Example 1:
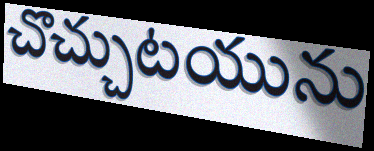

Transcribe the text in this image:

చొచ్చుటయును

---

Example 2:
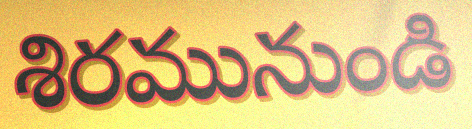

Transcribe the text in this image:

శిరమునుండి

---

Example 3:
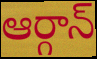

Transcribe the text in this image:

ఆర్గాన్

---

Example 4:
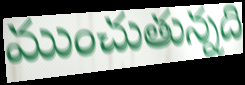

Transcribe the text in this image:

ముంచుతున్నది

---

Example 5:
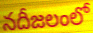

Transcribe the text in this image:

నదీజలంలో